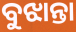
ବୁଝାନ୍ତା